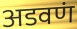
अडवणं